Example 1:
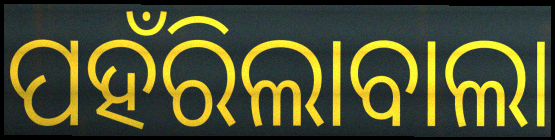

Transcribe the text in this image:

ପହଁରିଲାବାଲା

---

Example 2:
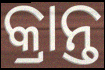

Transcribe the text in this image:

କ୍ରାନ୍ତ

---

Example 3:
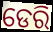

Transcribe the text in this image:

ଡେରି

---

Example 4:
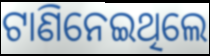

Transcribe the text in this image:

ଟାଣିନେଇଥିଲେ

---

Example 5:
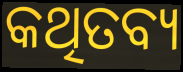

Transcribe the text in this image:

କଥିତବ୍ୟ